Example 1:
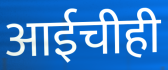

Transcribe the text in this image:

आईचीही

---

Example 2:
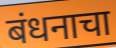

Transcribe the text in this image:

बंधनाचा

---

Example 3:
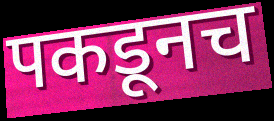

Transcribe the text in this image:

पकडूनच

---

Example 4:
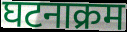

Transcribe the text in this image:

घटनाक्रम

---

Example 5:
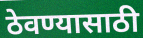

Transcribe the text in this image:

ठेवण्यासाठी